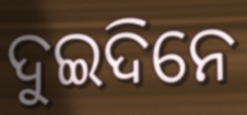
ଦୁଇଦିନେ